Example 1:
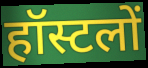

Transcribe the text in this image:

हॉस्टलों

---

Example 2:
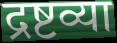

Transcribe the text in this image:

द्रष्टव्या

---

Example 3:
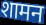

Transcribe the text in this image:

शामन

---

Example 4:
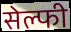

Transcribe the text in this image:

सेल्फी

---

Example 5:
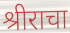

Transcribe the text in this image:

श्रीराचा